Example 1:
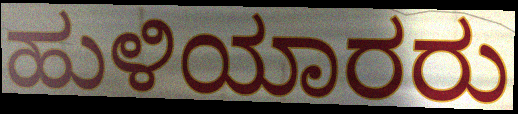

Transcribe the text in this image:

ಹುಳಿಯಾರರು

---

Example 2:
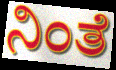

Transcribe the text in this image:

ನಿಂತೆ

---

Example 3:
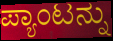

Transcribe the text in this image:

ಪ್ಯಾಂಟನ್ನು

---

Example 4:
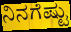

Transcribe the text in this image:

ನಿನಗೆಷ್ಟು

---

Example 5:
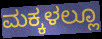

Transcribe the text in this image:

ಮಕ್ಕಳಲ್ಲೂ